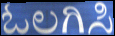
ಓಲಗಿಸಿ